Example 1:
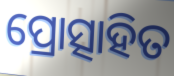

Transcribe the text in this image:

ପ୍ରୋତ୍ସାହିତ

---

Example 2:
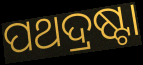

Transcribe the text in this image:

ପଥଦ୍ରଷ୍ଟା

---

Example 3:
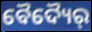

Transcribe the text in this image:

ବୈଦ୍ୟୈର୍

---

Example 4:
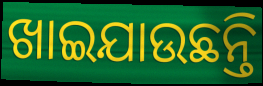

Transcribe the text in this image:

ଖାଇଯାଉଛନ୍ତି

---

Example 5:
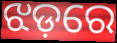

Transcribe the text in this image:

ଝଡ଼ରେ